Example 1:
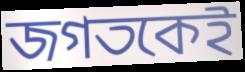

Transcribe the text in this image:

জগতকেই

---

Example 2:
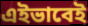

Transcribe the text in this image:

এইভাবেই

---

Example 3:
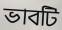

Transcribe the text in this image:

ভাবটি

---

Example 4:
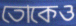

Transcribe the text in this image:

তোকেও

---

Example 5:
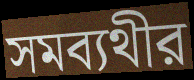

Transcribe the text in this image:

সমব্যথীর